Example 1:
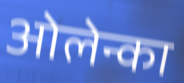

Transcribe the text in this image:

ओलेन्का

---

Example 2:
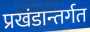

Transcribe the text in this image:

प्रखंडान्तर्गत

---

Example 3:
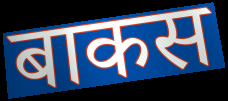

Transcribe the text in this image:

बाकस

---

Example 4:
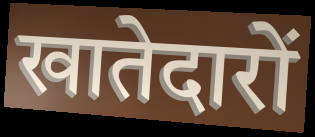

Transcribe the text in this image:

खातेदारों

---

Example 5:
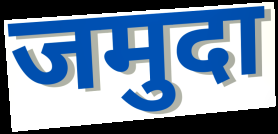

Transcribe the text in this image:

जमुदा